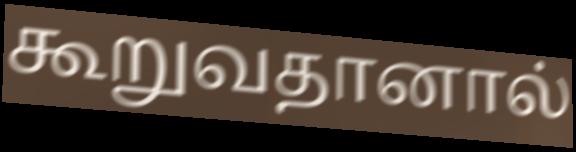
கூறுவதானால்